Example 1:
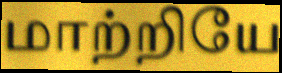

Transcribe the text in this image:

மாற்றியே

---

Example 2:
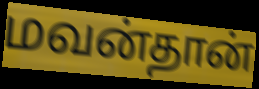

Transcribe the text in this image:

மவன்தான்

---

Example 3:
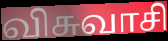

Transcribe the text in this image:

விசுவாசி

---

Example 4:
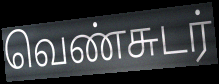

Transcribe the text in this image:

வெண்சுடர்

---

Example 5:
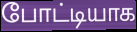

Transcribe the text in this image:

போட்டியாக